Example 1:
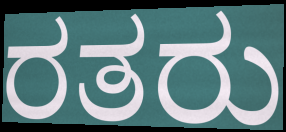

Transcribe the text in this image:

ರತರು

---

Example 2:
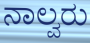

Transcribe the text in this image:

ನಾಲ್ವರು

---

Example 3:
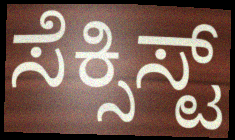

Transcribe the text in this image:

ಸೆಕ್ಸಿಸ್ಟ್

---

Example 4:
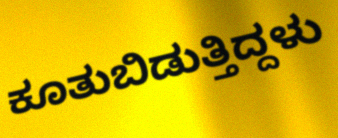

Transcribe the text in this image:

ಕೂತುಬಿಡುತ್ತಿದ್ದಳು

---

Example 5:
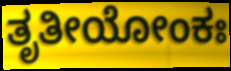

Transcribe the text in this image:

ತೃತೀಯೋಂಕಃ